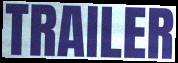
TRAILER